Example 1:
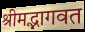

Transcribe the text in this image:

श्रीमद्भागवत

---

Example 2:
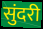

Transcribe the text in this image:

सुंदरी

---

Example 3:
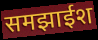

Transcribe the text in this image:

समझाईश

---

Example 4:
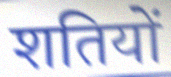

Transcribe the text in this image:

शतियों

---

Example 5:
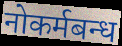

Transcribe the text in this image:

नोकर्मबन्ध